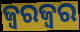
ଜ୍ୱରଜ୍ୱର